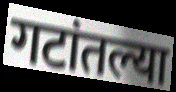
गटांतल्या